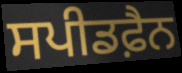
ਸਪੀਡਫ਼ੈਨ